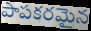
పాపకరమైన